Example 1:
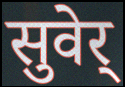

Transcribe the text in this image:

सुवेर्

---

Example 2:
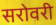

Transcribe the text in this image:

सरोवरी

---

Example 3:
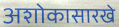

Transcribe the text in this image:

अशोकासारखे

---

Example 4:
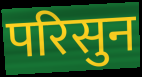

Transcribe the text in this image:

परिसुन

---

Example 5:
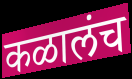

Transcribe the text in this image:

कळालंच